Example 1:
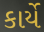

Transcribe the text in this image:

કાર્યે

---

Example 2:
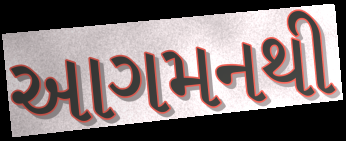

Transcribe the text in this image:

આગમનથી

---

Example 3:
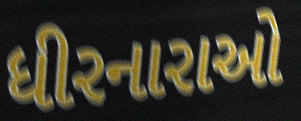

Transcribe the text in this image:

ધીરનારાઓ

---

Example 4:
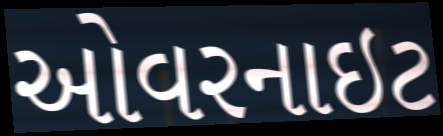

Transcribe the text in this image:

ઓવરનાઇટ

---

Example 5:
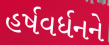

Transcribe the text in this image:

હર્ષવર્ધનને